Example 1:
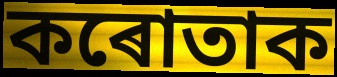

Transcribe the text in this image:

কৰোতাক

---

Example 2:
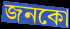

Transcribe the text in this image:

জনকো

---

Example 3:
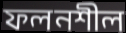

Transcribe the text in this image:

ফলনশীল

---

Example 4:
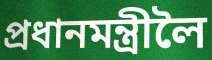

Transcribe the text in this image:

প্ৰধানমন্ত্ৰীলৈ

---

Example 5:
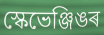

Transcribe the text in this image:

স্কেভেঞ্জিঙৰ